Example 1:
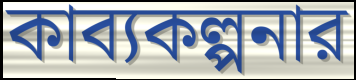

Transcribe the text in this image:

কাব্যকল্পনার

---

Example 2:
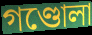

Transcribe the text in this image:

গণ্ডোলা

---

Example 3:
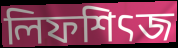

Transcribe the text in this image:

লিফশিৎজ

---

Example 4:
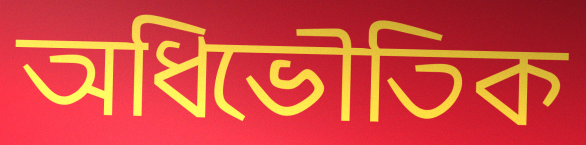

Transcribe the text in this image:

অধিভৌতিক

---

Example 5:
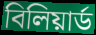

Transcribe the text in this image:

বিলিয়ার্ড